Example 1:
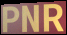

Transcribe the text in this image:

PNR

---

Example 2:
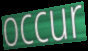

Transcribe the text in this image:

occur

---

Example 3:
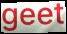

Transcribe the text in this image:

geet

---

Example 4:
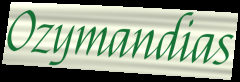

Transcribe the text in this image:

Ozymandias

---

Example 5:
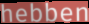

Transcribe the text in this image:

hebben